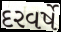
દરવર્ષે